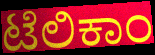
ಟೆಲಿಕಾಂ